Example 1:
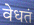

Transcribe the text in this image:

वेधतं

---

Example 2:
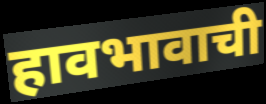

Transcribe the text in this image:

हावभावाची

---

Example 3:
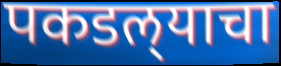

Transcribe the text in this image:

पकडल्याचा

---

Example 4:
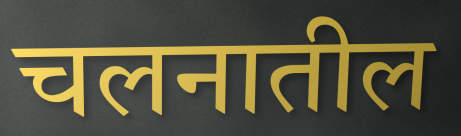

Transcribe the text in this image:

चलनातील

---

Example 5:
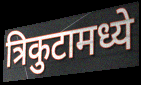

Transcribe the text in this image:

त्रिकुटामध्ये